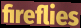
fireflies